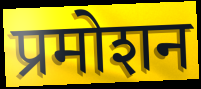
प्रमोशन